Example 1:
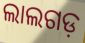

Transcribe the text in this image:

ଲାଲଗଡ଼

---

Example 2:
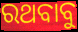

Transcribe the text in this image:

ରଥବାବୁ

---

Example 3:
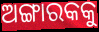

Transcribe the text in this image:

ଅଙ୍ଗାରକକୁ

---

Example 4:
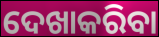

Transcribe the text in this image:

ଦେଖାକରିବା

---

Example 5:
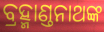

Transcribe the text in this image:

ବ୍ରହ୍ମାଣ୍ଡନାଥଙ୍କ